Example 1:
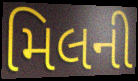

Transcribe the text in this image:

મિલની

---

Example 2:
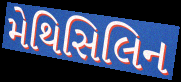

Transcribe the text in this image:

મેથિસિલિન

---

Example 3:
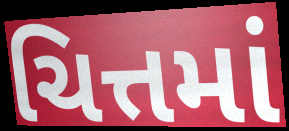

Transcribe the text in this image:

ચિત્તમાં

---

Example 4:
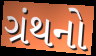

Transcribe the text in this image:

ગ્રંથનો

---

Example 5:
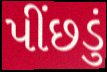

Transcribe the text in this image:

પીંછડું